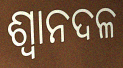
ଶ୍ୱାନଦଳ